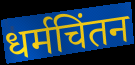
धर्मचिंतन